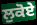
ਲੁਕੋਏ